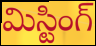
మిస్టింగ్